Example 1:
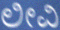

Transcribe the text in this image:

ಲೀವಿ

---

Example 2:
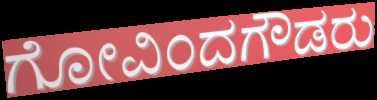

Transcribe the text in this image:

ಗೋವಿಂದಗೌಡರು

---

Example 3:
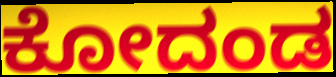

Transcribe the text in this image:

ಕೋದಂಡ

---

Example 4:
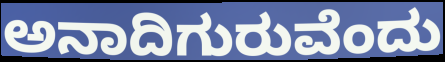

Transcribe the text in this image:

ಅನಾದಿಗುರುವೆಂದು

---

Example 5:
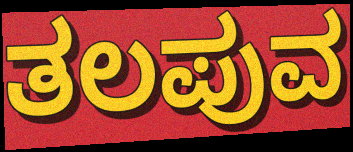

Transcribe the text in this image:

ತಲಪುವ